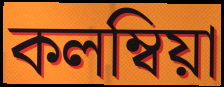
কলম্বিয়া